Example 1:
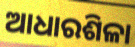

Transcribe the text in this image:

ଆଧାରଶିଳା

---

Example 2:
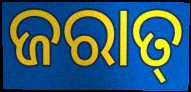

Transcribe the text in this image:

ଜରାତ୍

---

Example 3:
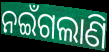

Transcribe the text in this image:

ନଇଁଗଲାଣି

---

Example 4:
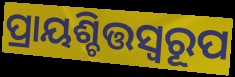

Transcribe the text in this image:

ପ୍ରାୟଶ୍ଚିତ୍ତସ୍ୱରୂପ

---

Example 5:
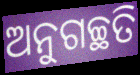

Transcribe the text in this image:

ଅନୁଗଚ୍ଛତି